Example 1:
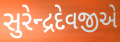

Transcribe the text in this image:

સુરેન્દ્રદેવજીએ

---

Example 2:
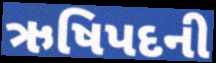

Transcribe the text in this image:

ઋષિપદની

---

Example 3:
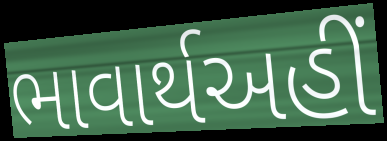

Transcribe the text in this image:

ભાવાર્થઅહીં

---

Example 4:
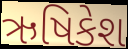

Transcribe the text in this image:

ઋષિકેશ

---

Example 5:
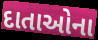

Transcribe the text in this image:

દાતાઓના